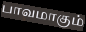
பாவமாகும்